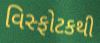
વિસ્ફોટકથી